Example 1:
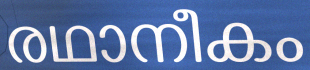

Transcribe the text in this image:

രഥാനീകം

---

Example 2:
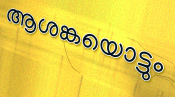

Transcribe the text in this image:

ആശങ്കയൊട്ടും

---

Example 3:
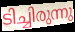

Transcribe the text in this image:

ടിച്ചിരുന്നു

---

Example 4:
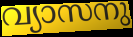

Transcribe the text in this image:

വ്യാസനു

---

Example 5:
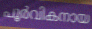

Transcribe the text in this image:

പൂർവികനായ